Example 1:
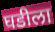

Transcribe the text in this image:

घडीला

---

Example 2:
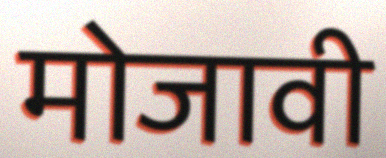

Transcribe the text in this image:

मोजावी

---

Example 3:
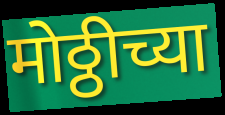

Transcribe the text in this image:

मोठ्ठीच्या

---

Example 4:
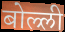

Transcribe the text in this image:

बोल्ली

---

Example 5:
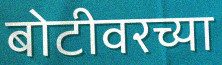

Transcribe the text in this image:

बोटीवरच्या